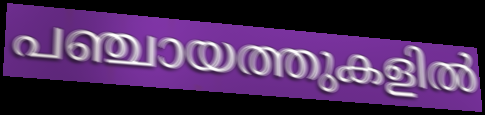
പഞ്ചായത്തുകളിൽ